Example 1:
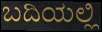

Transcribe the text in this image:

ಬದಿಯಲ್ಲಿ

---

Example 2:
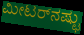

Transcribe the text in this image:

ಮೀಟರ್‌ನಷ್ಟು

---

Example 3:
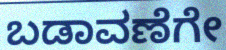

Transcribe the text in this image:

ಬಡಾವಣೆಗೇ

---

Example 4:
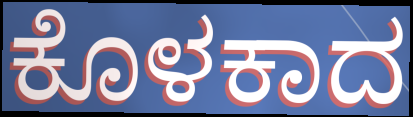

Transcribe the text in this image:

ಕೊಳಕಾದ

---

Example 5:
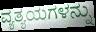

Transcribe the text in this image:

ವ್ಯತ್ಯಯಗಳನ್ನು